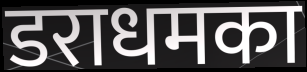
डराधमका